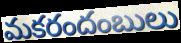
మకరందంబులు